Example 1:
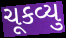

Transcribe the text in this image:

ચૂકવ્યુ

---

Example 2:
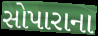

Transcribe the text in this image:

સોપારાના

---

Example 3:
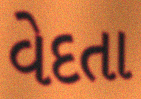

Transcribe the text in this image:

વેદતા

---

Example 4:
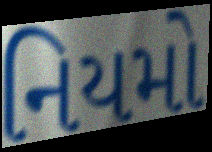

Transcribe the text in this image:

નિયમો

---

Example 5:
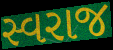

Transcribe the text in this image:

સ્વરાજ